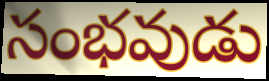
సంభవుడు